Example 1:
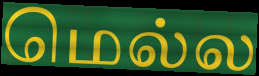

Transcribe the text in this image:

மெல்ல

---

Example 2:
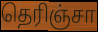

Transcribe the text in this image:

தெரிஞ்சா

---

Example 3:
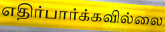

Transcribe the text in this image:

எதிர்பார்க்கவில்லை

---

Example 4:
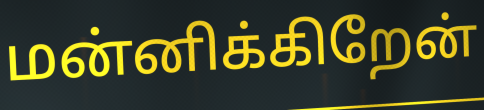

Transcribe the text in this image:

மன்னிக்கிறேன்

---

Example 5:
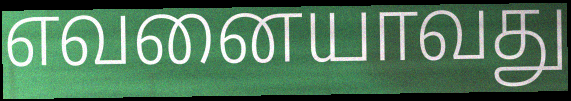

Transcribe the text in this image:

எவனையாவது